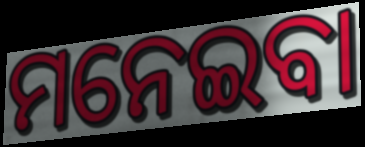
ମନେଇବା